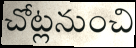
చోట్లనుంచి